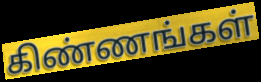
கிண்ணங்கள்